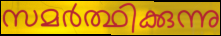
സമർത്ഥിക്കുന്നു